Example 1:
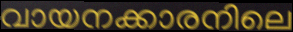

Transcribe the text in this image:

വായനക്കാരനിലെ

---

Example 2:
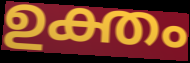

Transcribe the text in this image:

ഉക്തം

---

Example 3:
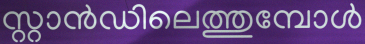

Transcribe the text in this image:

സ്റ്റാൻഡിലെത്തുമ്പോൾ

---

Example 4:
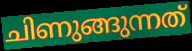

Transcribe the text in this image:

ചിണുങ്ങുന്നത്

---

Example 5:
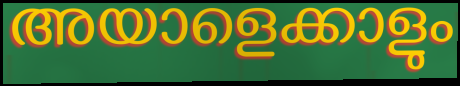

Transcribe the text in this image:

അയാളെക്കാളും